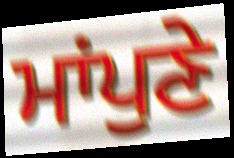
ਮਾਂਪੁਣੇ